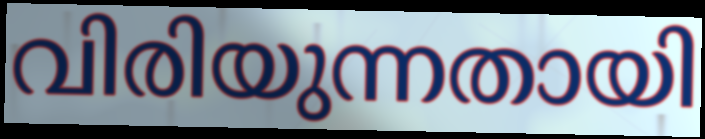
വിരിയുന്നതായി